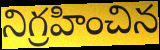
నిగ్రహించిన